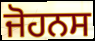
ਜੋਹਨਸ